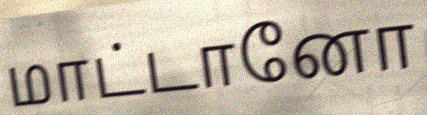
மாட்டானோ